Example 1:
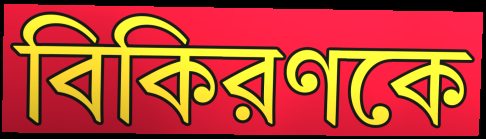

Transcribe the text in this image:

বিকিরণকে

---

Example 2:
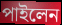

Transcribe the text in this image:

পাইলেন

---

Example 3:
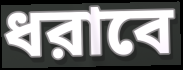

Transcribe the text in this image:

ধরাবে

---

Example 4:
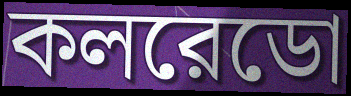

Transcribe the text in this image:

কলরেডো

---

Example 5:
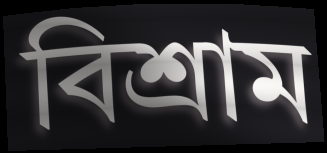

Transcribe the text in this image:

বিশ্রাম